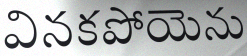
వినకపోయెను